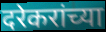
दरेकरांच्या